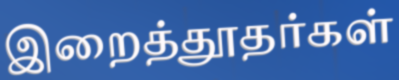
இறைத்தூதர்கள்